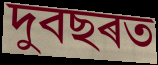
দুবছৰত